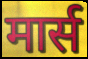
मार्स